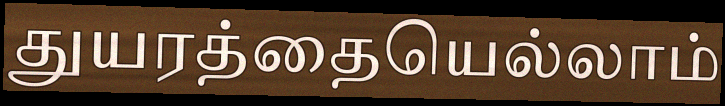
துயரத்தையெல்லாம்